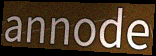
annode